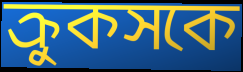
ক্রুকসকে